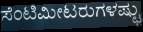
ಸೆಂಟಿಮೀಟರುಗಳಷ್ಟು